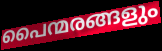
പൈന്മരങ്ങളും